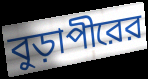
বুড়াপীরের